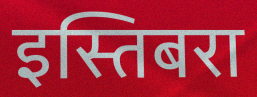
इस्तिबरा